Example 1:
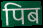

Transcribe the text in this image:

पिब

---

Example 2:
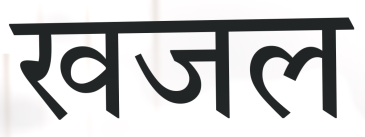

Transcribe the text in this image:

खजल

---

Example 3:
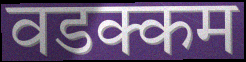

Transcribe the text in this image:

वडक्कम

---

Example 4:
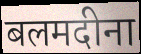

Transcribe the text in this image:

बलमदीना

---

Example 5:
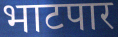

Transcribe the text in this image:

भाटपार